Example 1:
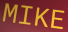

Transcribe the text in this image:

MIKE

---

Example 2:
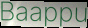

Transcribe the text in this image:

Baappu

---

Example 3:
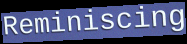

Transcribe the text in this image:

Reminiscing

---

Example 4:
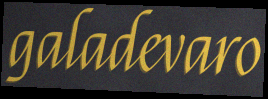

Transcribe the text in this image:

galadevaro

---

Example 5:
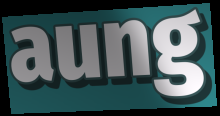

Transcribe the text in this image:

aung